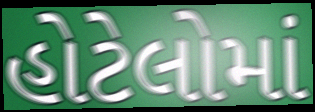
હોટેલોમાં